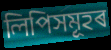
লিপিসমূহৰ